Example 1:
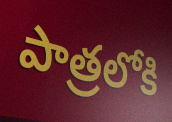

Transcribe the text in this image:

పాత్రలోకి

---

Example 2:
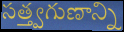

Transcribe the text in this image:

సత్త్వగుణాన్ని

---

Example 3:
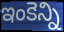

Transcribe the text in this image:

ఇంకెన్ని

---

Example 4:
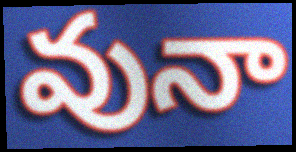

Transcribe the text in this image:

వునా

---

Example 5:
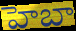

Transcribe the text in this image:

హెబా